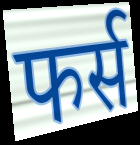
फर्स